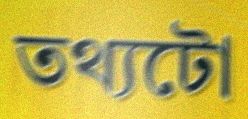
তথ্যটো